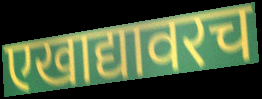
एखाद्यावरच